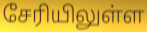
சேரியிலுள்ள